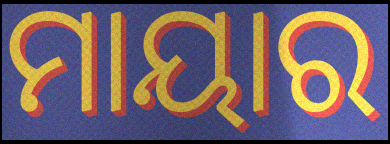
ମାୟାର